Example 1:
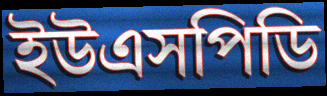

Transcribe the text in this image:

ইউএসপিডি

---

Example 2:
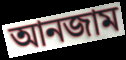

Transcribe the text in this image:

আনজাম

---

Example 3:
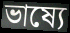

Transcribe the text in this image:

ভাষ্যে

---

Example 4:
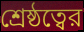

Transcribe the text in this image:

শ্রেষ্ঠত্বের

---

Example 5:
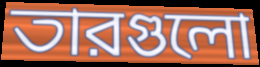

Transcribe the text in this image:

তারগুলো